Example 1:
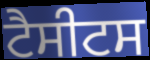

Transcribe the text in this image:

ਟੈਸੀਟਸ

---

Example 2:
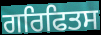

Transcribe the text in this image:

ਗਰਿਫਿਤਸ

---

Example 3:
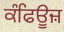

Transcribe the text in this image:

ਕੰਫਿਊਜ਼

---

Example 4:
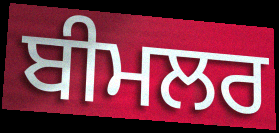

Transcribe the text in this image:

ਬੀਮਲਰ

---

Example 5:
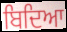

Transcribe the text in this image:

ਬਿਦਿਆ